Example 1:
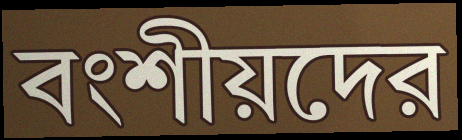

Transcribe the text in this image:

বংশীয়দের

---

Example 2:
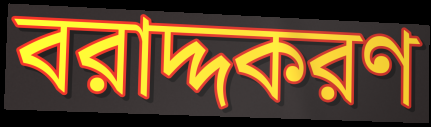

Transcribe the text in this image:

বরাদ্দকরণ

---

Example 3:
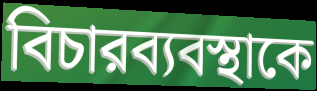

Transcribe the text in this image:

বিচারব্যবস্থাকে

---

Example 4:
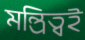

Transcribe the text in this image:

মন্ত্রিত্বই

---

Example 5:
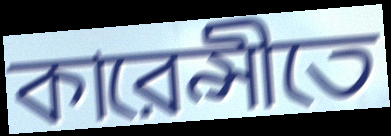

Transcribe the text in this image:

কারেন্সীতে